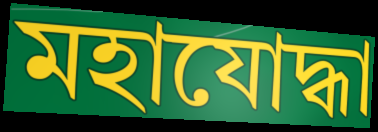
মহাযোদ্ধা